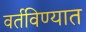
वर्तविण्यात